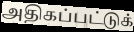
அதிகப்பட்டுக்